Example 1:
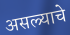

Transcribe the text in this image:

असल्याचे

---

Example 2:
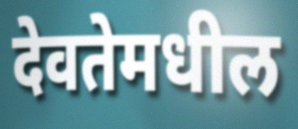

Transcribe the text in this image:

देवतेमधील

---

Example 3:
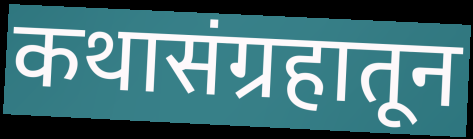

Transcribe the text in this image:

कथासंग्रहातून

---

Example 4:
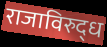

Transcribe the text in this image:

राजाविरुद्ध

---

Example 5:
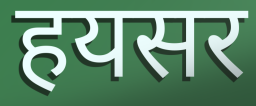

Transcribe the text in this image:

हयसर